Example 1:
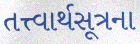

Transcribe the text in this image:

તત્ત્વાર્થસૂત્રના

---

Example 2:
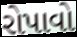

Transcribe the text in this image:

રોપાવો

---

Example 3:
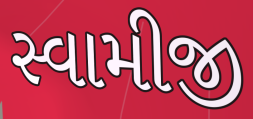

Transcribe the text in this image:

સ્વામીજી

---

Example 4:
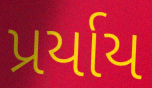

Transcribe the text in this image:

પ્રર્યાય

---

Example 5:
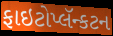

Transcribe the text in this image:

ફાઇટોપ્લૅન્કટન